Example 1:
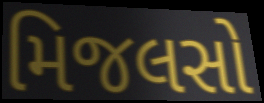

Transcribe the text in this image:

મિજલસો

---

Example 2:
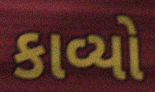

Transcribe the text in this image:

કાવ્યો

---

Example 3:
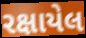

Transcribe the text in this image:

રક્ષાયેલ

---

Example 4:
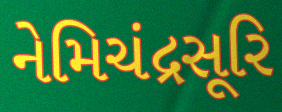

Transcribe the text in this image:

નેમિચંદ્રસૂરિ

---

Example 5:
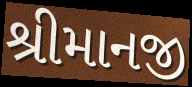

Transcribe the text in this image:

શ્રીમાનજી